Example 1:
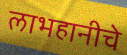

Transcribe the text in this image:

लाभहानीचे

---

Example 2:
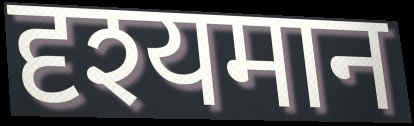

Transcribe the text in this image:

दृश्यमान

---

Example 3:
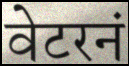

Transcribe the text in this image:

वेटरनं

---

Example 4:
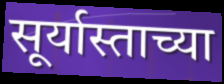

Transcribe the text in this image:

सूर्यास्ताच्या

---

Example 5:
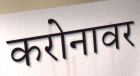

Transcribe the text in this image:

करोनावर